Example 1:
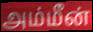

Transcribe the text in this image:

அம்மீன்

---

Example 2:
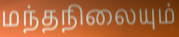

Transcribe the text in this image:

மந்தநிலையும்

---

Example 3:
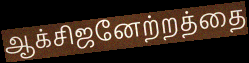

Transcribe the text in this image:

ஆக்சிஜனேற்றத்தை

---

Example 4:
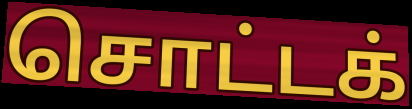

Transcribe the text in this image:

சொட்டக்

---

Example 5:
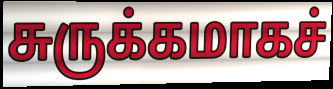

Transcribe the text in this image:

சுருக்கமாகச்